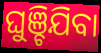
ଘୁଞ୍ଚିଯିବା